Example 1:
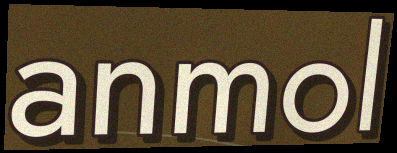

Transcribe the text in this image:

anmol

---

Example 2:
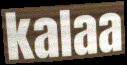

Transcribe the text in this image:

kalaa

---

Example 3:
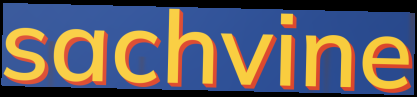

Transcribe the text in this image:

sachvine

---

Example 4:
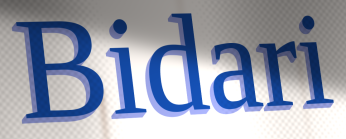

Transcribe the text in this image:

Bidari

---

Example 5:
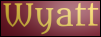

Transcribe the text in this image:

Wyatt